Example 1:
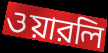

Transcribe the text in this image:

ওয়ারলি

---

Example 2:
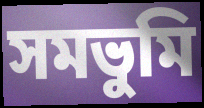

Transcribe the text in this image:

সমভুমি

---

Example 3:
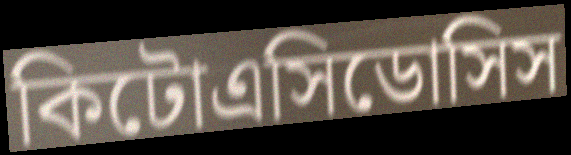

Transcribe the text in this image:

কিটোএসিডোসিস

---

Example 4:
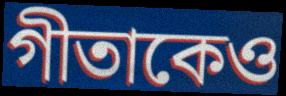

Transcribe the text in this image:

গীতাকেও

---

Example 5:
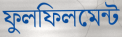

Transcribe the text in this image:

ফুলফিলমেন্ট